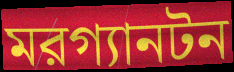
মরগ্যানটন